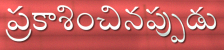
ప్రకాశించినప్పుడు